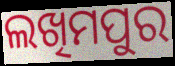
ଲଖିମପୁର